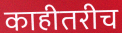
काहीतरीच